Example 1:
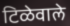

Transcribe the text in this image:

टिळेवाले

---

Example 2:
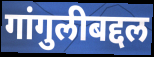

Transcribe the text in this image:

गांगुलीबद्दल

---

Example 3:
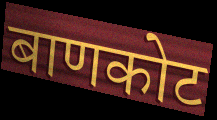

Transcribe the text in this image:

बाणकोट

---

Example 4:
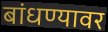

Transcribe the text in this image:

बांधण्यावर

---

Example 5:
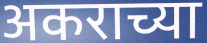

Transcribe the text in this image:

अकराच्या